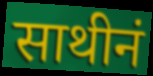
साथीनं